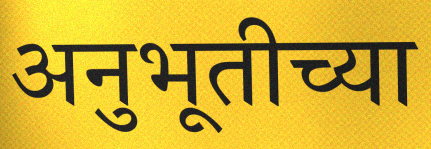
अनुभूतीच्या